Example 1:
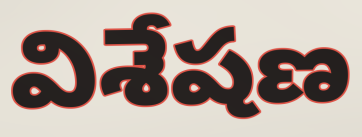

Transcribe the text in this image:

విశేషణ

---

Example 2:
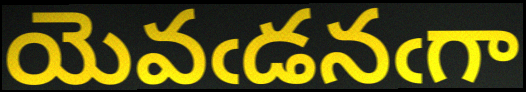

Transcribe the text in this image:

యెవఁడనఁగా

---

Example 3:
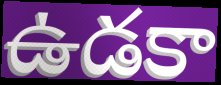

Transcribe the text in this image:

ఉడకా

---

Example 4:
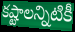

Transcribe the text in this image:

కష్టాలన్నిటికీ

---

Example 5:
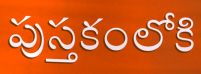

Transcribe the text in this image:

పుస్తకంలోకి